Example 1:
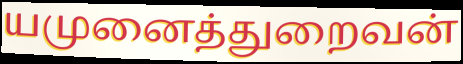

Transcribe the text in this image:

யமுனைத்துறைவன்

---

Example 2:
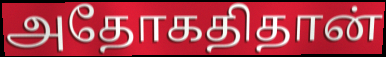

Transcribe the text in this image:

அதோகதிதான்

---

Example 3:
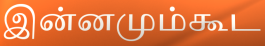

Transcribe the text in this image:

இன்னமும்கூட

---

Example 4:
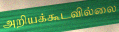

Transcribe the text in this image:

அறியக்கூடவில்லை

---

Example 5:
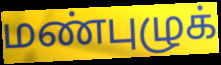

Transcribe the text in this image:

மண்புழுக்